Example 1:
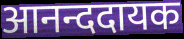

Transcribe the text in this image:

आनन्ददायक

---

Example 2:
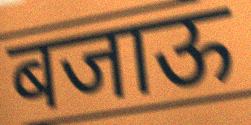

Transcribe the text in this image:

बजाऊ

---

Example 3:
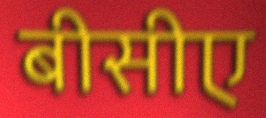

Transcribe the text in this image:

बीसीए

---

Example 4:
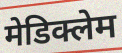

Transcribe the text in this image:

मेडिक्लेम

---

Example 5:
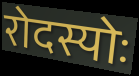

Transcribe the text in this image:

रोदस्योः